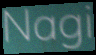
Nagi